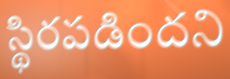
స్థిరపడిందని